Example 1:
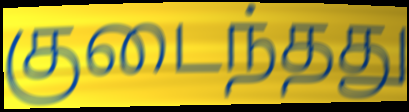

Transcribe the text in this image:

குடைந்தது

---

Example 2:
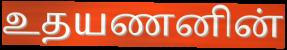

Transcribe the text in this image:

உதயணனின்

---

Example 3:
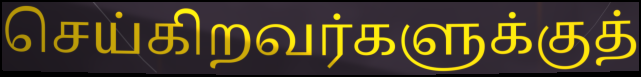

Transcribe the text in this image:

செய்கிறவர்களுக்குத்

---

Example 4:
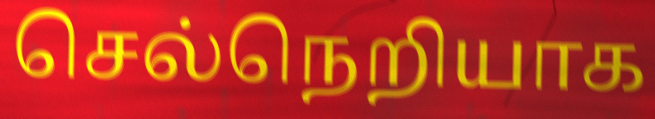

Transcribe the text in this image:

செல்நெறியாக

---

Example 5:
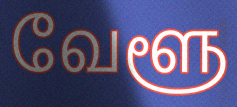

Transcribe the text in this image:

வேளூ